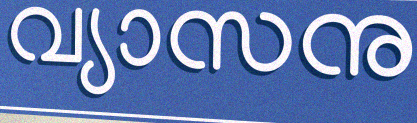
വ്യാസനു